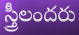
స్త్రీలందరు